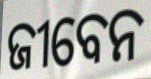
ଜୀବେନ